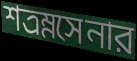
শত্রম্নসেনার